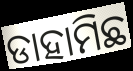
ଡାହାମିଛ